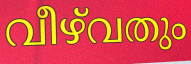
വീഴ്‌വതും